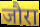
जौरा